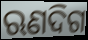
ଋଣଦିଗ